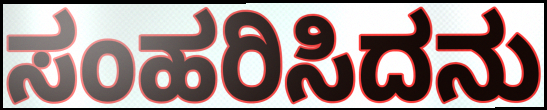
ಸಂಹರಿಸಿದನು